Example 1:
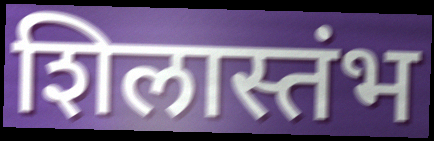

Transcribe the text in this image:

शिलास्तंभ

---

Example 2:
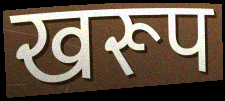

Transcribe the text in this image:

खरूप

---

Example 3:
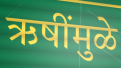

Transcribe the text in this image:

ऋषींमुळे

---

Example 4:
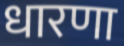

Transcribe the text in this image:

धारणा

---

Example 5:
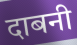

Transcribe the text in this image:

दाबनी